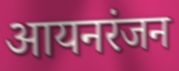
आयनरंजन